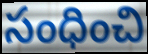
సంధించి